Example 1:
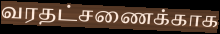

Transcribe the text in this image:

வரதட்சணைக்காக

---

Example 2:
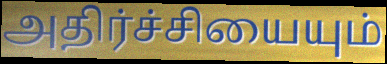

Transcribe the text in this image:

அதிர்ச்சியையும்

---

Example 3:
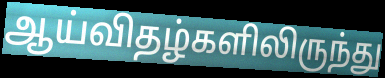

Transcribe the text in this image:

ஆய்விதழ்களிலிருந்து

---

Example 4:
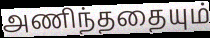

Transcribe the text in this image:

அணிந்ததையும்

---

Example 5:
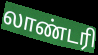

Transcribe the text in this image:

லாண்டரி